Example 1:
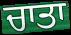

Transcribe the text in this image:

ਚਾਤਾ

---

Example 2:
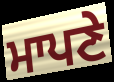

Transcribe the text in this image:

ਮਾਪਣੇ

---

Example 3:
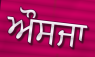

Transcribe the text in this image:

ਔਸਜਾ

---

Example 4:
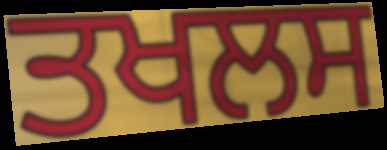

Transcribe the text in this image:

ਤਖਲਸ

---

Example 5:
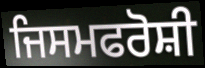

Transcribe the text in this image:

ਜਿਸਮਫਰੋਸ਼ੀ